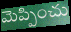
మెప్పించు